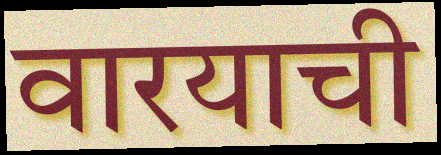
वारयाची